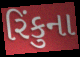
રિંકુના